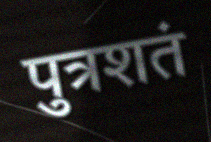
पुत्रशतं